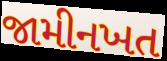
જામીનખત